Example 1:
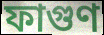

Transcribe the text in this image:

ফাগুণ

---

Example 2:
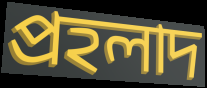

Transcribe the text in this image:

প্রহলাদ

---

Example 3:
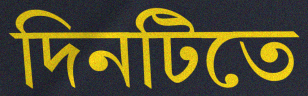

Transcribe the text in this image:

দিনটিতে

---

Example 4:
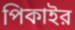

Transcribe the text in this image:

পিকাইর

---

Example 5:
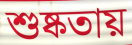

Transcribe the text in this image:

শুষ্কতায়